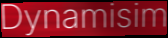
Dynamisim